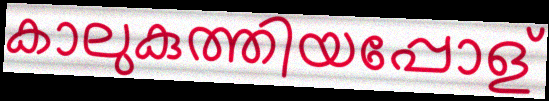
കാലുകുത്തിയപ്പോള്